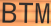
BTM